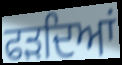
ਫੜਦਿਆਂ